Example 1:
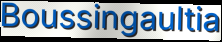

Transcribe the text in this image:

Boussingaultia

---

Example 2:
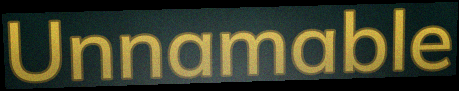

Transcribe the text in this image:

Unnamable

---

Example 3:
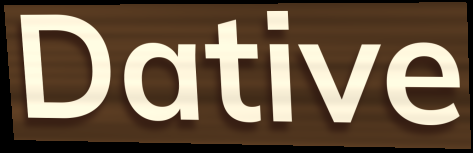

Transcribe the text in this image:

Dative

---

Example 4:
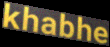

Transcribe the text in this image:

khabhe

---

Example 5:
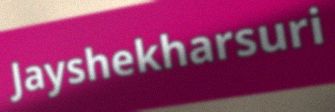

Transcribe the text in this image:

Jayshekharsuri